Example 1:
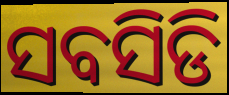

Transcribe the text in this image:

ସବସିଡି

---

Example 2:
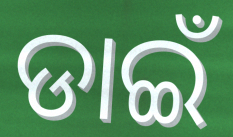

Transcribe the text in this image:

ଡାଇଁ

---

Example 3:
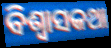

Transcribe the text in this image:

ବିଶ୍ଵାସକଥା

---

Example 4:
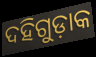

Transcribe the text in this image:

ଦହିଗୁଡ଼ାକ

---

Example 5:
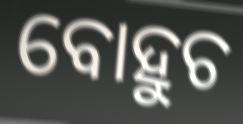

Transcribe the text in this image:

ବୋହୁଚ